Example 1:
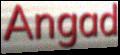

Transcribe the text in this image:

Angad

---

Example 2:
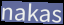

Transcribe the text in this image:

nakas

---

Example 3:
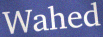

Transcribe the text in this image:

Wahed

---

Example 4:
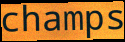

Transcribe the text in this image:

champs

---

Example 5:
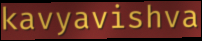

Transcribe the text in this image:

kavyavishva